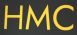
HMC